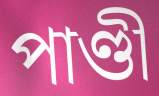
পাণ্ডী